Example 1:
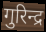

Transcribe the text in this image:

गुरिन्द्र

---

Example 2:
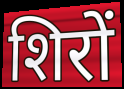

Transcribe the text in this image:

शिरों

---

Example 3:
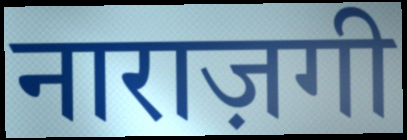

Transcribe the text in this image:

नाराज़गी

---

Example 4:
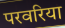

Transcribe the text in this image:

परवरिया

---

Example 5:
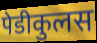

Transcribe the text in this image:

पेडीकुलस